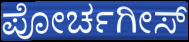
ಪೋರ್ಚಗೀಸ್